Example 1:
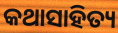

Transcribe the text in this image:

କଥାସାହିତ୍ୟ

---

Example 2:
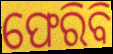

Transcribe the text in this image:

ଫେରିବି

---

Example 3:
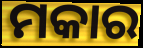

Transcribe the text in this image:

ମକାର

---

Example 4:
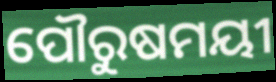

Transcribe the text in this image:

ପୌରୁଷମୟୀ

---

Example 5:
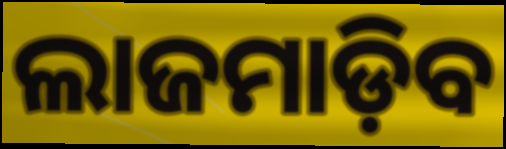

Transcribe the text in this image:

ଲାଜମାଡ଼ିବ